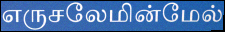
எருசலேமின்மேல்